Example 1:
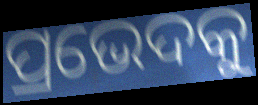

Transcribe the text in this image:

ପ୍ରଭେଦକୁ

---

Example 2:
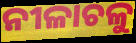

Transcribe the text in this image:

ନୀଳାଚଳୁ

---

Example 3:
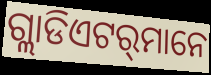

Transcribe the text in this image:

ଗ୍ଲାଡିଏଟର୍‍ମାନେ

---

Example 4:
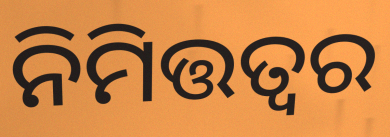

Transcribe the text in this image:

ନିମିତ୍ତତ୍ଵର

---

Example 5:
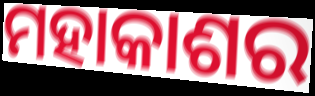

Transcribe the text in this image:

ମହାକାଶର